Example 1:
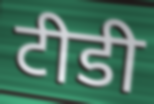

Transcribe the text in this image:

टीडी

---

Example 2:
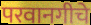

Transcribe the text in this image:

परवानगीचे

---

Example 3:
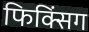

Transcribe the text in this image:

फिक्सिंग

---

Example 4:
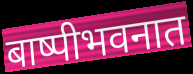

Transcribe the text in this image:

बाष्पीभवनात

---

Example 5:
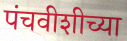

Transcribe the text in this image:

पंचवीशीच्या